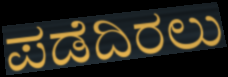
ಪಡೆದಿರಲು